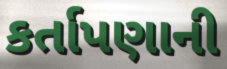
કર્તાપણાની